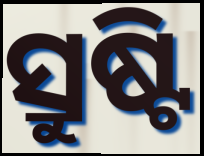
ସ୍ରୁଷ୍ଟି